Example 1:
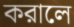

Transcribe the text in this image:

করালে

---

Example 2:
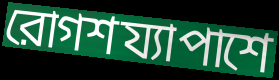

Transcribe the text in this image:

রোগশয্যাপাশে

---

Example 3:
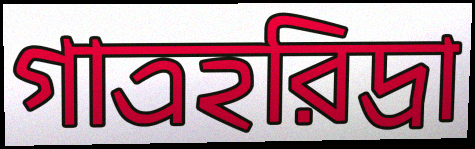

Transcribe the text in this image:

গাত্রহরিদ্রা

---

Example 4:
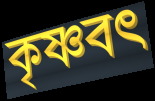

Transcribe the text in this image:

কৃষ্ণবৎ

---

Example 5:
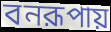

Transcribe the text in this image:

বনরূপায়